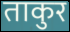
ताकुर